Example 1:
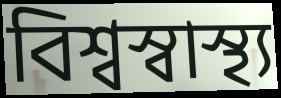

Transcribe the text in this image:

বিশ্বস্বাস্থ্য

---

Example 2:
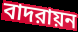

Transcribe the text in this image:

বাদরায়ন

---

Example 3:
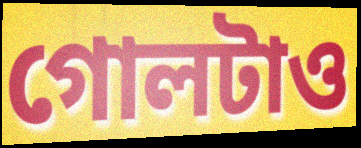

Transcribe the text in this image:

গোলটাও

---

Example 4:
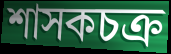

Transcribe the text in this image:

শাসকচক্র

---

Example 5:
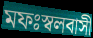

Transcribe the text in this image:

মফঃস্বলবাসী